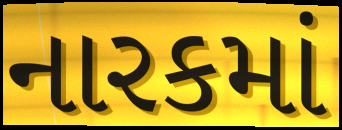
નારકમાં